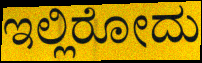
ಇಲ್ಲಿರೋದು